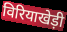
विरियाखेड़ी